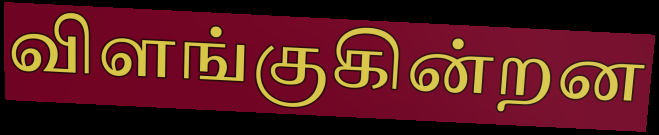
விளங்குகின்றன